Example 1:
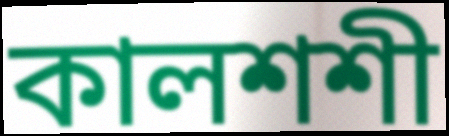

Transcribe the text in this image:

কালশশী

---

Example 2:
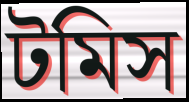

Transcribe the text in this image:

টমিস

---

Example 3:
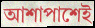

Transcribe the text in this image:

আশাপাশেই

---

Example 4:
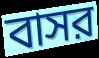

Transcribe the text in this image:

বাসর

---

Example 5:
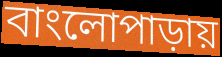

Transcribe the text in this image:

বাংলোপাড়ায়